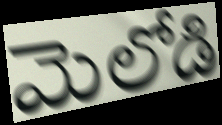
మెలోడి